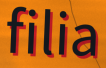
filia